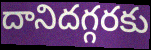
దానిదగ్గరకు